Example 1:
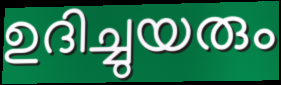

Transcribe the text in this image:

ഉദിച്ചുയരും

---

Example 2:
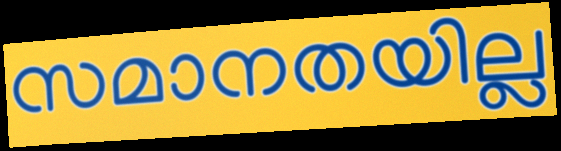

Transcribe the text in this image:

സമാനതയില്ല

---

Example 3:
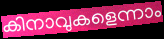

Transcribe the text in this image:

കിനാവുകളെന്നാം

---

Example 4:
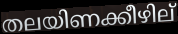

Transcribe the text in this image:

തലയിണക്കീഴില്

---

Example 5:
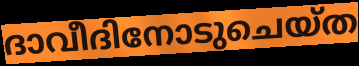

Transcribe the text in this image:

ദാവീദിനോടുചെയ്ത